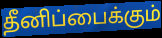
தீனிப்பைக்கும்